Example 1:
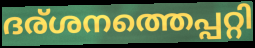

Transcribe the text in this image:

ദര്ശനത്തെപ്പറ്റി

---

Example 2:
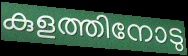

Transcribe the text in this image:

കുളത്തിനോടു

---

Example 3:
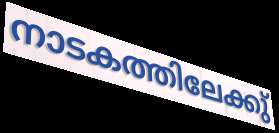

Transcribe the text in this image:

നാടകത്തിലേക്കു്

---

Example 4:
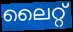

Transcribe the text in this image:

ലൈറ്റ്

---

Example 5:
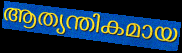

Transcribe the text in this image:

ആത്യന്തികമായ